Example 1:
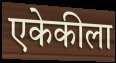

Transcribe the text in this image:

एकेकीला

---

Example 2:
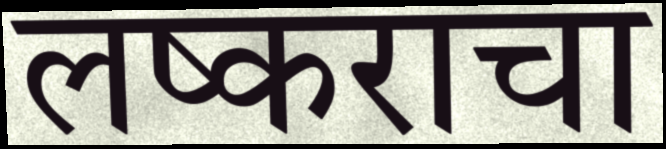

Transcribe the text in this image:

लष्कराचा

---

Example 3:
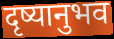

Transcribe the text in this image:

दृष्यानुभव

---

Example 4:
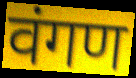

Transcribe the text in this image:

वंगण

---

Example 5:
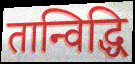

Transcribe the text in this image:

तान्विद्धि